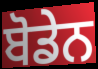
ਬੋਡੇਨ